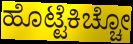
ಹೊಟ್ಟೆಕಿಚ್ಚೋ